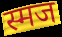
स्मज